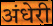
अंधेरी